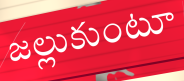
జల్లుకుంటూ